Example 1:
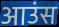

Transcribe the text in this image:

आउंस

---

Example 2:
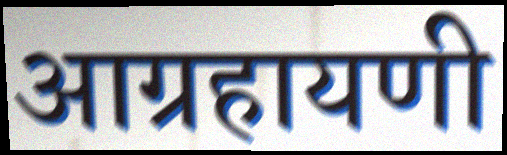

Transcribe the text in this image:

आग्रहायणी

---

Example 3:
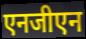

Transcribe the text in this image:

एनजीएन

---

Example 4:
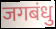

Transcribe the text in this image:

जगबंधु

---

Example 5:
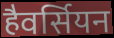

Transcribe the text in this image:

हैवर्सियन